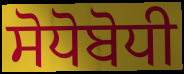
ਸੋਧੋਬੋਧੀ